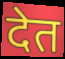
देत